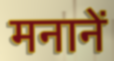
मनानें